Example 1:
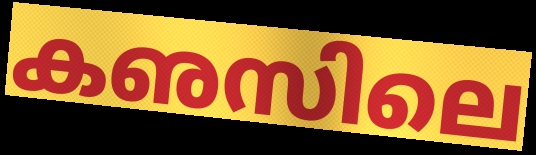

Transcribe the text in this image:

കഌസിലെ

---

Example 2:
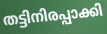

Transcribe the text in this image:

തട്ടിനിരപ്പാക്കി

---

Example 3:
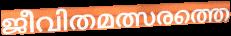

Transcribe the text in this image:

ജീവിതമത്സരത്തെ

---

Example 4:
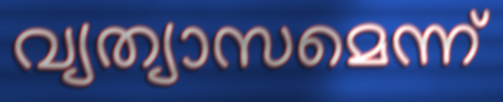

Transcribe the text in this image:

വ്യത്യാസമെന്ന്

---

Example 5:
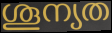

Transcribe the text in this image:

ശൂന്യത